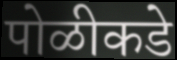
पोळीकडे